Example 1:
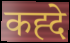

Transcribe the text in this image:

कह्दे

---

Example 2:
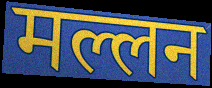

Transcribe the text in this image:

मल्लन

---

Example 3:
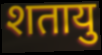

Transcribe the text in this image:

शतायु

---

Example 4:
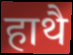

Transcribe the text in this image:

हाथै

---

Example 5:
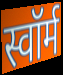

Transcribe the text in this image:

स्वॉर्म